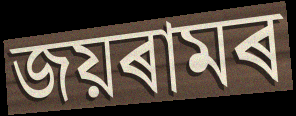
জয়ৰামৰ